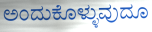
ಅಂದುಕೊಳ್ಳುವುದೂ